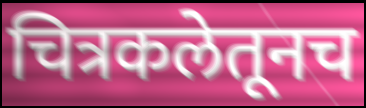
चित्रकलेतूनच